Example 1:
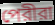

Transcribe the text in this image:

পেরীরা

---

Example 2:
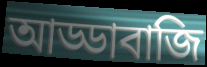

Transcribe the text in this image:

আড্ডাবাজি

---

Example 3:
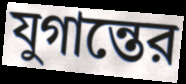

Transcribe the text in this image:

যুগান্তের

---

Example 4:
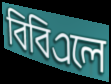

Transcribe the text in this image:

বিবিএলে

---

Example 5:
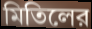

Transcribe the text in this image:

মিতিলের